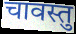
चावस्तु